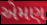
એમણ